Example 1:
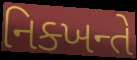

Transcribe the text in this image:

નિક્ખન્તે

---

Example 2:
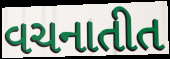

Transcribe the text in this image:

વચનાતીત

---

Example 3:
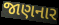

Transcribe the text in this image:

જાણનાર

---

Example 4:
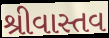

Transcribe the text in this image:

શ્રીવાસ્તવ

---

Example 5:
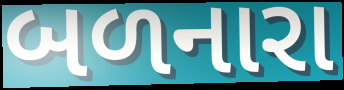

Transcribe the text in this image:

બળનારા